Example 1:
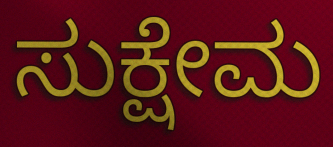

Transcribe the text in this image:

ಸುಕ್ಷೇಮ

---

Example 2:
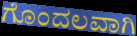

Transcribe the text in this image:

ಗೊಂದಲವಾಗಿ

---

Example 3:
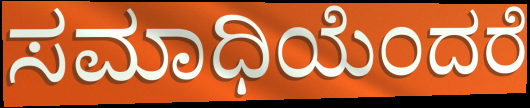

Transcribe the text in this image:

ಸಮಾಧಿಯೆಂದರೆ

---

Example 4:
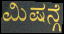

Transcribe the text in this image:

ಮಿಷನ್ಗೆ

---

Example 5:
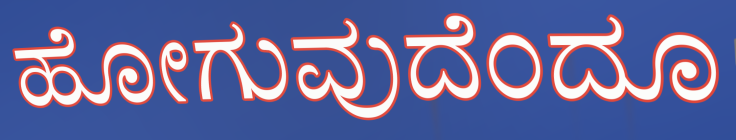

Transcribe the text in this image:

ಹೋಗುವುದೆಂದೂ